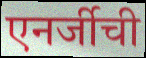
एनर्जीची